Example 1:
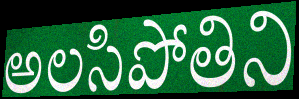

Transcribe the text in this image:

అలసిపోతిని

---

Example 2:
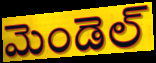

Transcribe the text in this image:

మెండెల్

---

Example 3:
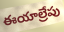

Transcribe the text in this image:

ఈయాల్రేపు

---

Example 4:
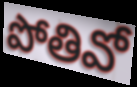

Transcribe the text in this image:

పోతివో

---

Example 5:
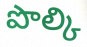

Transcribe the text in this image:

పొల్కి